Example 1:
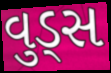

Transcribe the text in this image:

વુડ્સ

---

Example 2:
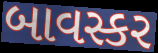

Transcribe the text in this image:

બાવસ્કર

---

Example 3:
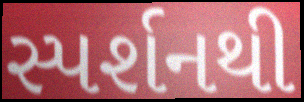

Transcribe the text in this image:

સ્પર્શનથી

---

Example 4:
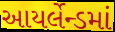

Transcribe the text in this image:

આયર્લેન્ડમાં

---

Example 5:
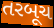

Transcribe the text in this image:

તરબૂચ